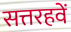
सत्तरहवें